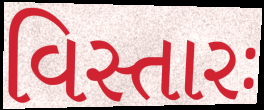
વિસ્તારઃ